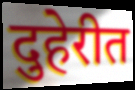
दुहेरीत